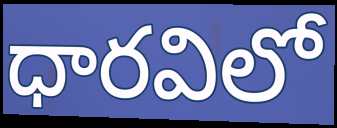
ధారవిలో